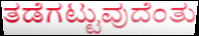
ತಡೆಗಟ್ಟುವುದೆಂತು